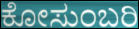
ಕೋಸುಂಬರಿ